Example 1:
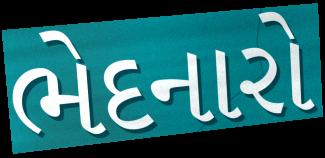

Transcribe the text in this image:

ભેદનારો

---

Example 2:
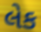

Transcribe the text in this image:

લેક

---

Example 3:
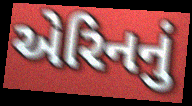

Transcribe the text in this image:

એરિનનું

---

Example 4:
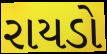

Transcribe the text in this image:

રાયડો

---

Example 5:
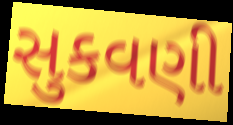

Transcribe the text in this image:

સુકવણી